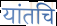
यांतचि